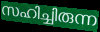
സഹിച്ചിരുന്ന